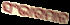
ସଂଭାଗମାନ